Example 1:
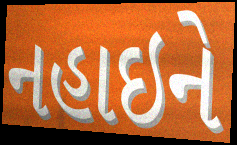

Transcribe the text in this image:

નહાઇને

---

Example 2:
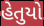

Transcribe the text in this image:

હેતુયો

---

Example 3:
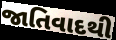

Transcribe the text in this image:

જાતિવાદથી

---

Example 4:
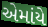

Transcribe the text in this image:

એમાંયે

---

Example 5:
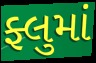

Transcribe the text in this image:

ફ્લુમાં